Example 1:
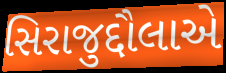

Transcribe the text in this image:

સિરાજુદ્દૌલાએ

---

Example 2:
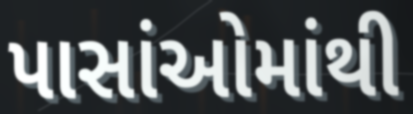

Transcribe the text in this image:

પાસાંઓમાંથી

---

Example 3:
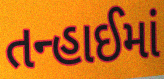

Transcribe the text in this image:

તન્હાઈમાં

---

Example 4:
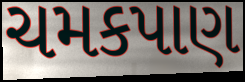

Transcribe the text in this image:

ચમકપાણ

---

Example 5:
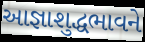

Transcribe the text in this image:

આજ્ઞાશુદ્ધભાવને